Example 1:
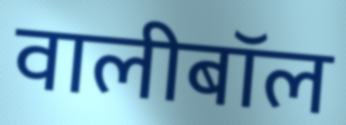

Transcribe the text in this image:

वालीबॉल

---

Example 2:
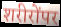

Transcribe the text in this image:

शरीरोंपर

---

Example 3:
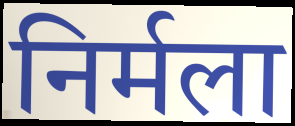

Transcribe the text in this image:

निर्मला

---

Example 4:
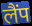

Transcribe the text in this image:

लैंप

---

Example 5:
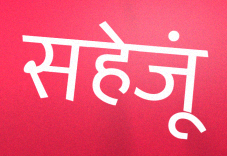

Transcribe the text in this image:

सहेजूं